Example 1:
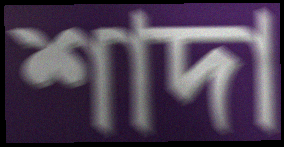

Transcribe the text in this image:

শাদা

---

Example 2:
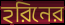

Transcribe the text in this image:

হরিনের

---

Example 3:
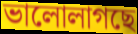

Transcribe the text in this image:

ভালোলাগছে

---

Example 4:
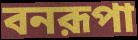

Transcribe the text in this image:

বনরূপা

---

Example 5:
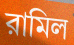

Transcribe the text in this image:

রামিল